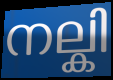
നല്കി